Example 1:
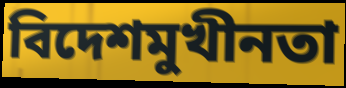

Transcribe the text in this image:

বিদেশমুখীনতা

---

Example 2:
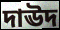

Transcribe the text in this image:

দাঊদ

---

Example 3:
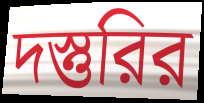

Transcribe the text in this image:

দস্তুরির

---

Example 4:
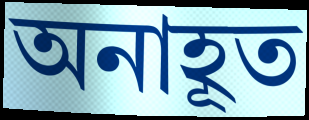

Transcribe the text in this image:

অনাহূত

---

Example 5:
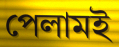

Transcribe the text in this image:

পেলামই